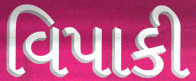
વિપાકી